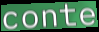
conte